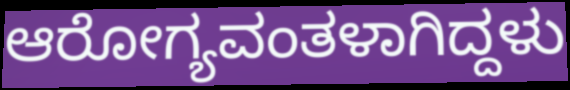
ಆರೋಗ್ಯವಂತಳಾಗಿದ್ದಳು